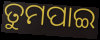
ତୁମପାଇ